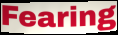
Fearing